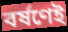
বর্ষণেই